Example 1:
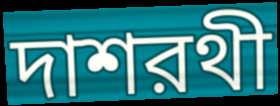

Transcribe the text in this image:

দাশরথী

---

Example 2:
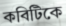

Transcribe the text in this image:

কবিটিকে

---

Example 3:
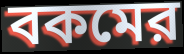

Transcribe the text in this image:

বকমের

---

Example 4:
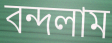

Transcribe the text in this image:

বন্দলাম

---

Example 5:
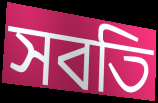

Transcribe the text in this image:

সবতি